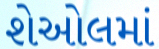
શેઓલમાં